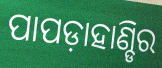
ପାପଡ଼ାହାଣ୍ଡିର